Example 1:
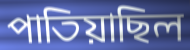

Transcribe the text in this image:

পাতিয়াছিল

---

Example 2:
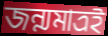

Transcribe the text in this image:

জন্মমাত্রই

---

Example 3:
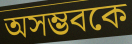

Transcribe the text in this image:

অসম্ভবকে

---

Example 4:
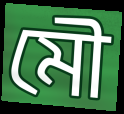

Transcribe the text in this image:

মৌ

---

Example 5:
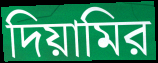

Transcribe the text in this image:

দিয়ামির